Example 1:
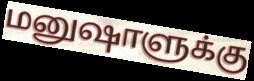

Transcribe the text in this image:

மனுஷாளுக்கு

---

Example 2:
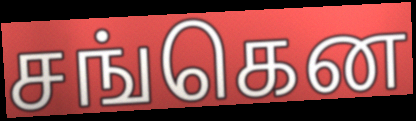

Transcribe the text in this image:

சங்கென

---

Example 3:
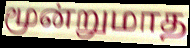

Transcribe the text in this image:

மூன்றுமாத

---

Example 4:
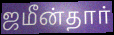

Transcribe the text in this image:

ஜமீன்தார்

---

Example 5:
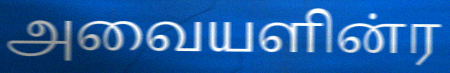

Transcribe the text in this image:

அவையளின்ர